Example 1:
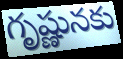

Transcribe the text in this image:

గృష్ణునకు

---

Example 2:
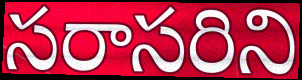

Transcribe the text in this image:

సరాసరిని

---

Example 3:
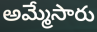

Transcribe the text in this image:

అమ్మేసారు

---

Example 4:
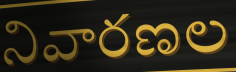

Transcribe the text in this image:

నివారణల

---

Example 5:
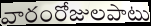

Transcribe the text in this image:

వారంరోజులపాటు